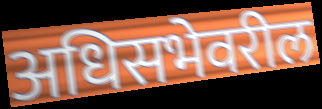
अधिसभेवरील